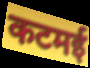
कटमई